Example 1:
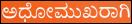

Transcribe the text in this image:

ಅಧೋಮುಖರಾಗಿ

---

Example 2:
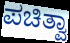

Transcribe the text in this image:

ಪಚಿತ್ವಾ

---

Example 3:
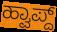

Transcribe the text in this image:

ಹ್ವಾಪ್ದ್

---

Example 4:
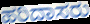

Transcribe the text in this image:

ಹರಿದಾಸರು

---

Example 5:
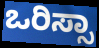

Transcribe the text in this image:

ಒರಿಸ್ಸಾ